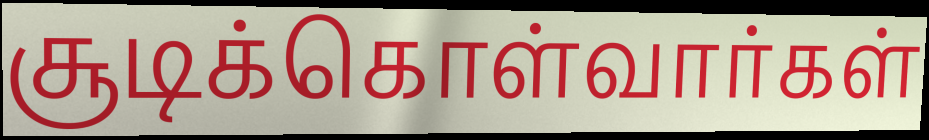
சூடிக்கொள்வார்கள்